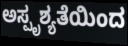
ಅಸ್ಪೃಶ್ಯತೆಯಿಂದ